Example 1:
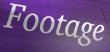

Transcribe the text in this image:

Footage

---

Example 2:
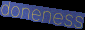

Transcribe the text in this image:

doneness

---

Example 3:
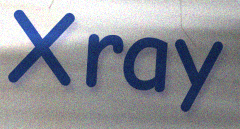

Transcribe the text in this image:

Xray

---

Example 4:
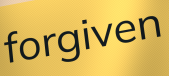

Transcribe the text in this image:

forgiven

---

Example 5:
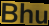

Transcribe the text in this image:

Bhu